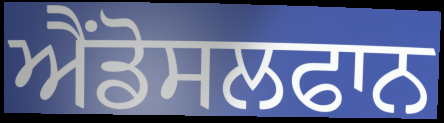
ਐਂਡੋਸਲਫਾਨ